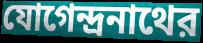
যোগেন্দ্রনাথের